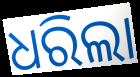
ଧରିଲା